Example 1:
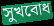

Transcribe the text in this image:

সুখবোধ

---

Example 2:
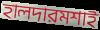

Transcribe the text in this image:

হালদারমশাই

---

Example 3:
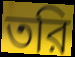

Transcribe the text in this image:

তরি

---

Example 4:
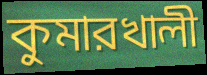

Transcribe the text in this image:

কুমারখালী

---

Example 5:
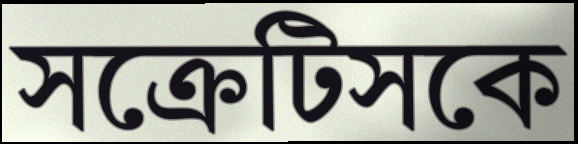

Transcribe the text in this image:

সক্রেটিসকে